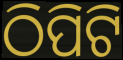
ଠିପିଟି